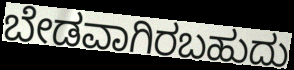
ಬೇಡವಾಗಿರಬಹುದು